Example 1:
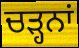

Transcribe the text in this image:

ਚੜ੍ਹਨਾਂ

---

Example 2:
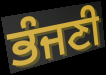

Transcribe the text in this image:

ਭੰਜਣੀ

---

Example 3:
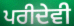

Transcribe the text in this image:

ਪਰੀਦੇਵੀ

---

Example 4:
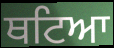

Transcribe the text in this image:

ਥਟਿਆ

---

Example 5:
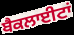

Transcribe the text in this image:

ਬੈਕਲਾਈਟਾਂ